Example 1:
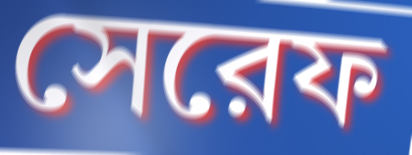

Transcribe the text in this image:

সেরেফ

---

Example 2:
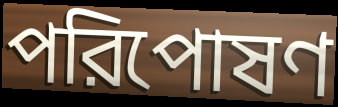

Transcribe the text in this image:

পরিপোষণ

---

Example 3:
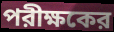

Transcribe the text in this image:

পরীক্ষকের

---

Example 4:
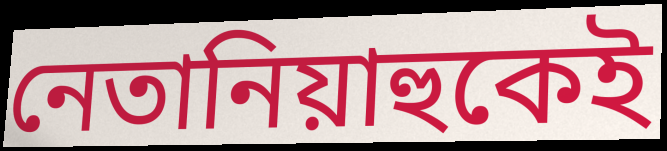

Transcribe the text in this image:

নেতানিয়াহুকেই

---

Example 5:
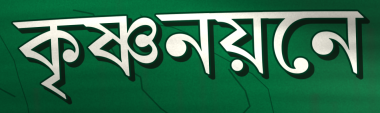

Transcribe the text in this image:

কৃষ্ণনয়নে